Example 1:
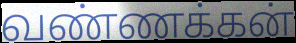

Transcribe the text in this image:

வண்ணக்கன்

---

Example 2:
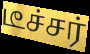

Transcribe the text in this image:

டீச்சர்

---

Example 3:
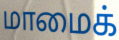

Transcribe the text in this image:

மாமைக்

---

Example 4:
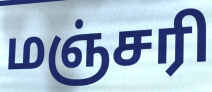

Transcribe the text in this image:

மஞ்சரி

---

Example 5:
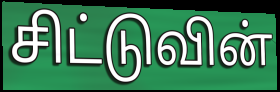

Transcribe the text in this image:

சிட்டுவின்